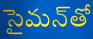
సైమన్‌తో